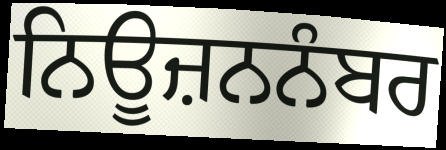
ਨਿਊਜ਼ਨਨੰਬਰ